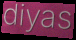
diyas